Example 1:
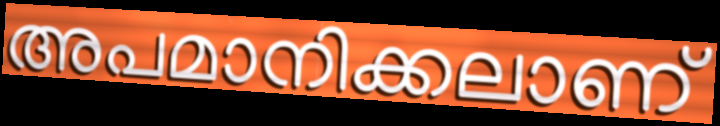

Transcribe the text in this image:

അപമാനിക്കലാണ്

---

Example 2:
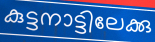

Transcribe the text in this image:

കുട്ടനാട്ടിലേക്കു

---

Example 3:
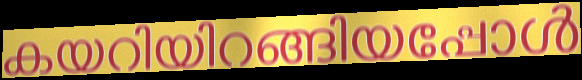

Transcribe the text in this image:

കയറിയിറങ്ങിയപ്പോൾ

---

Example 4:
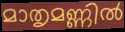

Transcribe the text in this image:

മാതൃമണ്ണിൽ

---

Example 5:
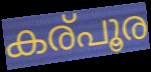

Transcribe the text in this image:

കര്പൂര